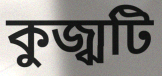
কুজ্ঝটি